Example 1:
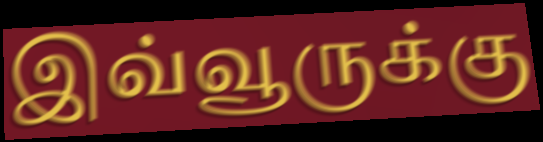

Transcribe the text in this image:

இவ்வூருக்கு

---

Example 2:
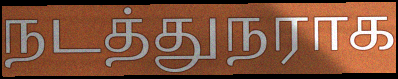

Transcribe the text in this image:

நடத்துநராக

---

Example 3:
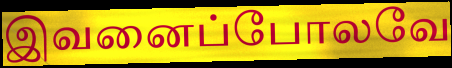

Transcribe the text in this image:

இவனைப்போலவே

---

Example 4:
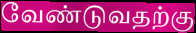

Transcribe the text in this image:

வேண்டுவதற்கு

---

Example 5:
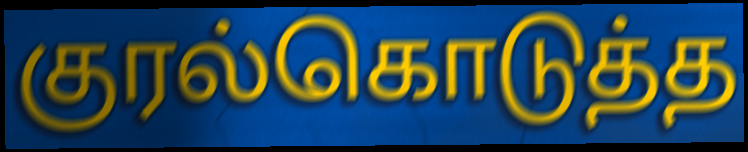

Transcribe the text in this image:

குரல்கொடுத்த